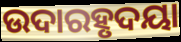
ଉଦାରହୃଦୟା